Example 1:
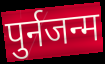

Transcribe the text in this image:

पुर्नजन्म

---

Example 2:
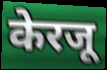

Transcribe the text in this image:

केरजू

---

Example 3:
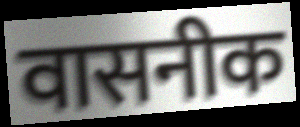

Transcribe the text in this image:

वासनीक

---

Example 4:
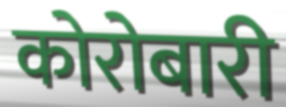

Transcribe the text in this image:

कोरोबारी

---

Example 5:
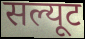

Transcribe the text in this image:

सल्यूट